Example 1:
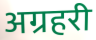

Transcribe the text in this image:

अग्रहरी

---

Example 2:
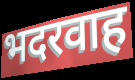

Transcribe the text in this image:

भदरवाह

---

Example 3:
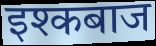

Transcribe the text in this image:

इश्कबाज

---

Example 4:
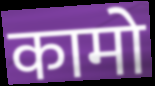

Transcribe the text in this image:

कामो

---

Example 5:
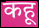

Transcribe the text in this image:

कहू